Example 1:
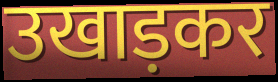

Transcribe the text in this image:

उखाड़कर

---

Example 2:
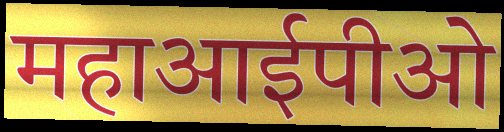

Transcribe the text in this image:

महाआईपीओ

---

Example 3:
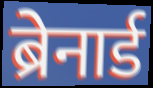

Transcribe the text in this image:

ब्रेनार्ड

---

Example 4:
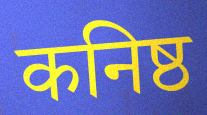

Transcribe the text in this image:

कनिष्ठ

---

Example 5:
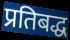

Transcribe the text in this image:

प्रतिबद्ध